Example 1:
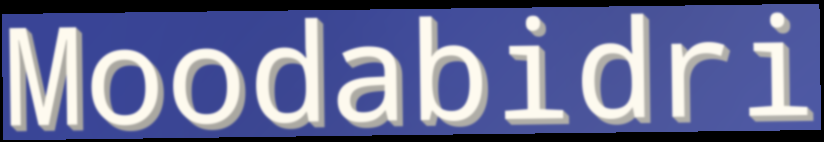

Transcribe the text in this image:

Moodabidri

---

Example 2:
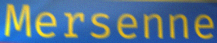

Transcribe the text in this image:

Mersenne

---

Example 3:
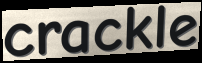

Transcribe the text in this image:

crackle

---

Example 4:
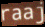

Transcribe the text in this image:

raaj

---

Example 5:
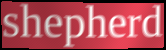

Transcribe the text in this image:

shepherd